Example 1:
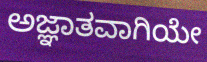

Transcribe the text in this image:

ಅಜ್ಞಾತವಾಗಿಯೇ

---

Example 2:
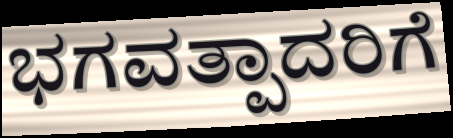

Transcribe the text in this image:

ಭಗವತ್ಪಾದರಿಗೆ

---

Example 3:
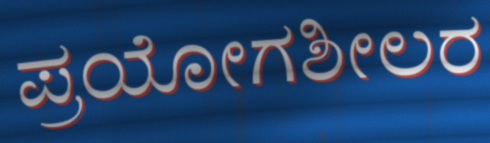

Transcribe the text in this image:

ಪ್ರಯೋಗಶೀಲರ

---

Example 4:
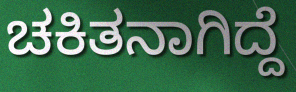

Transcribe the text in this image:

ಚಕಿತನಾಗಿದ್ದೆ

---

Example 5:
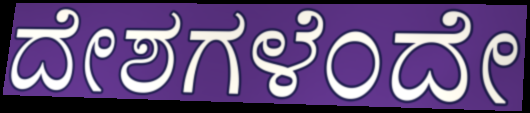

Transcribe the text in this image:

ದೇಶಗಳೆಂದೇ